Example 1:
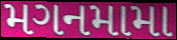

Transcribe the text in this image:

મગનમામા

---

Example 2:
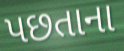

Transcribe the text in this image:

પછતાના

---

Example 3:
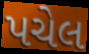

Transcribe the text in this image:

પચેલ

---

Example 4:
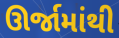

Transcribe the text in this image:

ઊર્જામાંથી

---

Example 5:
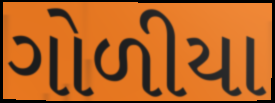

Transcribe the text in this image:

ગોળીયા